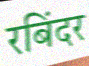
रबिंदर